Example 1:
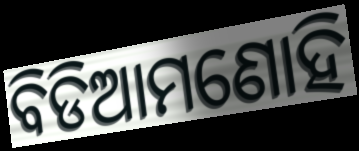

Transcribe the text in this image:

ବିଡିଆମଣୋହି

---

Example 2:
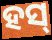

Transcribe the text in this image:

ହସ୍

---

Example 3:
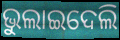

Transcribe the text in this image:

ଭୁଲାଇଦେଲି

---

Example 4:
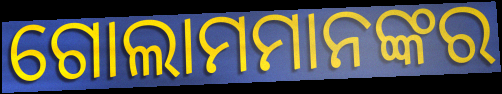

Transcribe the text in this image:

ଗୋଲାମମାନଙ୍କର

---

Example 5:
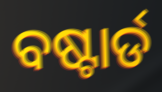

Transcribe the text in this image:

ବଷ୍ଟାର୍ଡ